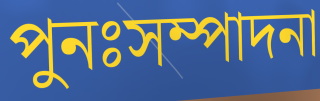
পুনঃসম্পাদনা